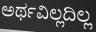
ಅರ್ಥವಿಲ್ಲದಿಲ್ಲ